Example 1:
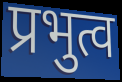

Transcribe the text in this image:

प्रभुत्व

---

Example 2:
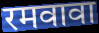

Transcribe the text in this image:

रमवावा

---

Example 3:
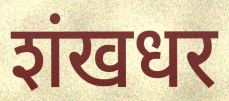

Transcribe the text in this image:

शंखधर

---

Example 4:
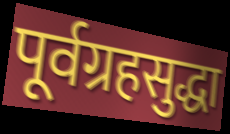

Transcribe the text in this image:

पूर्वग्रहसुद्धा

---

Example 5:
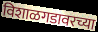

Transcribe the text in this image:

विशाळगडावरच्या